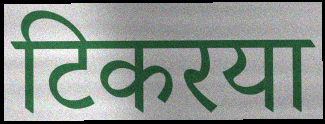
टिकरया